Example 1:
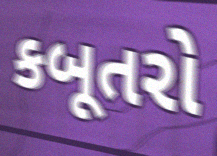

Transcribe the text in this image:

કબૂતરો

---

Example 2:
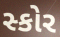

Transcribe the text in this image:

સ્કોર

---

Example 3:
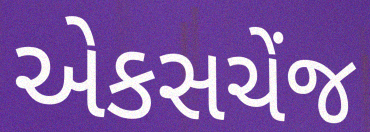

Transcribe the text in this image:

એકસચેંજ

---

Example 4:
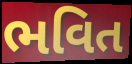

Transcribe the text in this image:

ભવિત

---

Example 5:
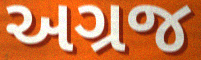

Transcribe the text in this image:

અગ્રજ